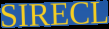
SIRECL